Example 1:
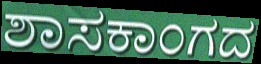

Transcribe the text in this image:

ಶಾಸಕಾಂಗದ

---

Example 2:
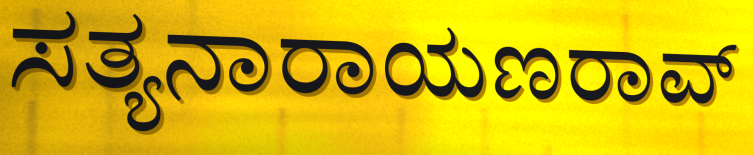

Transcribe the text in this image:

ಸತ್ಯನಾರಾಯಣರಾವ್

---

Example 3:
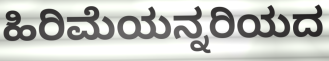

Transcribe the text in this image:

ಹಿರಿಮೆಯನ್ನರಿಯದ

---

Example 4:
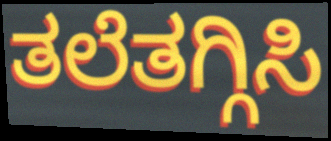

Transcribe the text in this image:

ತಲೆತಗ್ಗಿಸಿ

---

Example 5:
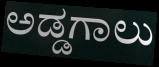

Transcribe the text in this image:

ಅಡ್ಡಗಾಲು